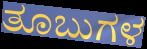
ತೂಬುಗಳ